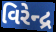
વિરેન્દ્ર